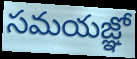
సమయజ్ఞో